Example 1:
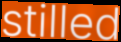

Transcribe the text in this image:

stilled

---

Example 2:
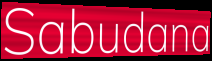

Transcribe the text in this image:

Sabudana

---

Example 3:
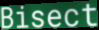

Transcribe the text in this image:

Bisect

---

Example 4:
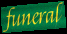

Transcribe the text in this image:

funeral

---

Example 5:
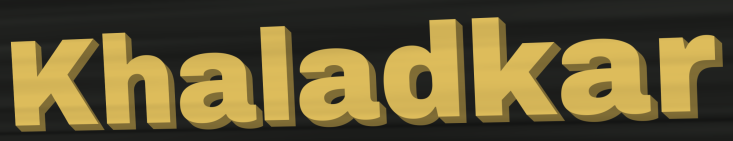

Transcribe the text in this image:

Khaladkar